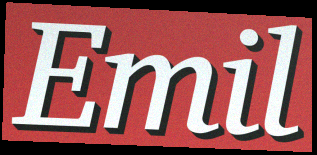
Emil